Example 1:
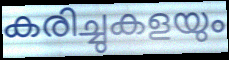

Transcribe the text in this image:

കരിച്ചുകളയും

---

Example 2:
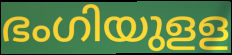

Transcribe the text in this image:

ഭംഗിയുളള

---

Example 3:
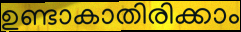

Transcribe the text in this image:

ഉണ്ടാകാതിരിക്കാം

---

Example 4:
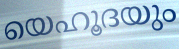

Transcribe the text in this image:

യെഹൂദയും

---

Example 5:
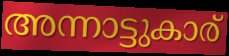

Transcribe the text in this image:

അന്നാട്ടുകാര്